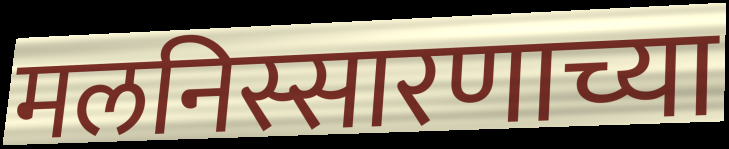
मलनिस्सारणाच्या